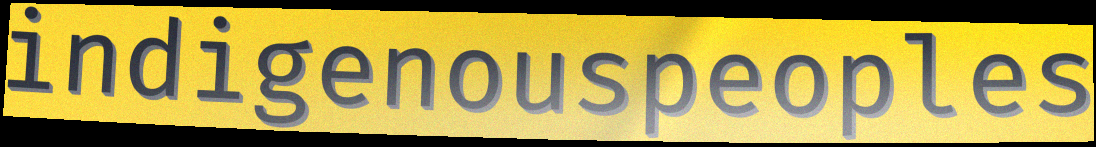
indigenouspeoples